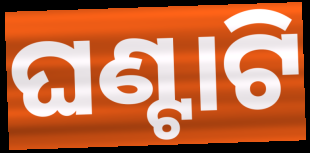
ଘଣ୍ଟାଟି